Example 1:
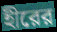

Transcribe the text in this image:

হীরের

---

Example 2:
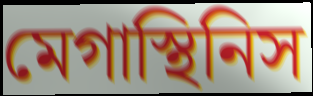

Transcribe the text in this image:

মেগাস্থিনিস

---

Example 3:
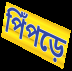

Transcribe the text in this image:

পিঁপড়ে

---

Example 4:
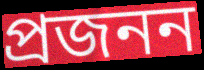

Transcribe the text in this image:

প্রজনন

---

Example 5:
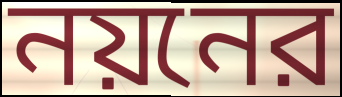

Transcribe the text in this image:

নয়নের